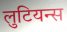
लुटियन्स